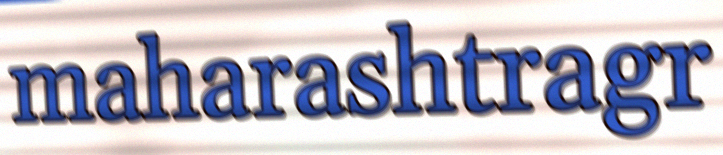
maharashtragr